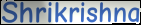
Shrikrishna